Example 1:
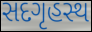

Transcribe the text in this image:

સદગૃહસ્થ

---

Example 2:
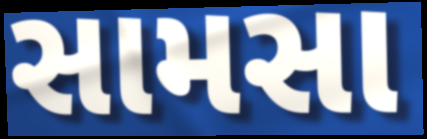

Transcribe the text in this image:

સામસા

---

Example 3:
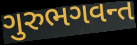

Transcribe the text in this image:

ગુરુભગવન્ત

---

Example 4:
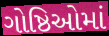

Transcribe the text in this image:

ગોષ્ઠિઓમાં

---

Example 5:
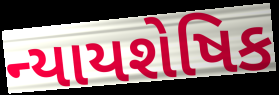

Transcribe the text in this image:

ન્યાયશેષિક